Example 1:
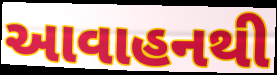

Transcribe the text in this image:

આવાહનથી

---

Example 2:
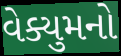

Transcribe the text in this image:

વેક્યુમનો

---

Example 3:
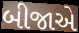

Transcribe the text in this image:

બીજાએ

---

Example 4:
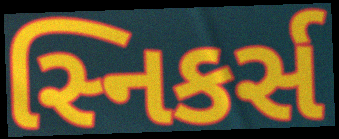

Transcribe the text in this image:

સ્નિકર્સ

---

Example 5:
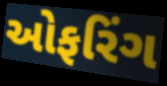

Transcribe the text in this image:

ઓફરિંગ